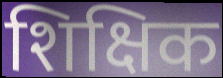
शिक्षिक